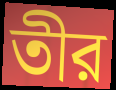
তীর